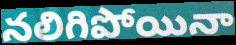
నలిగిపోయినా